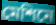
মেশিনে